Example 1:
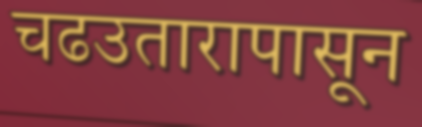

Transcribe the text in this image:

चढउतारापासून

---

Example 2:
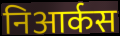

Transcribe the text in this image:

निआर्कस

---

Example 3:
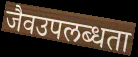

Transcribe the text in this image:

जैवउपलब्धता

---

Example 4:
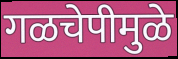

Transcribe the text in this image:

गळचेपीमुळे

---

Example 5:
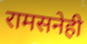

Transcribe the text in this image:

रामसनेही